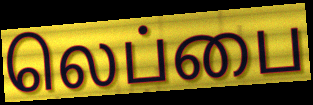
லெப்பை